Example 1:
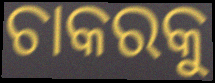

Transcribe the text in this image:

ଚାକରକୁ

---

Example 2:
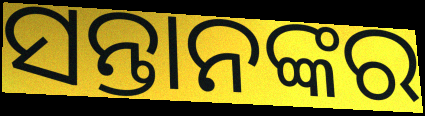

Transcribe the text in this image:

ସନ୍ତାନଙ୍କର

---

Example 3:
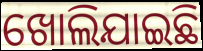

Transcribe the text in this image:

ଖୋଲିଯାଇଛି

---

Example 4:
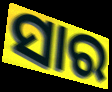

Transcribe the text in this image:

ସାର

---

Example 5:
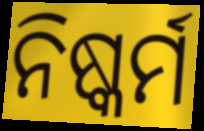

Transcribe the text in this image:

ନିଷ୍କର୍ମ